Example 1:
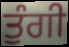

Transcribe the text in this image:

ਤੁੰਗੀ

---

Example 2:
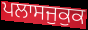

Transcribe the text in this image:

ਪਲਾਸਜੁਕੁਕ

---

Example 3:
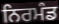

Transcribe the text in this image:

ਨਿਰਮੰਡ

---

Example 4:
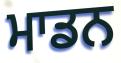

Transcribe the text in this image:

ਮਾਡਨ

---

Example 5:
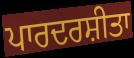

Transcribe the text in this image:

ਪਾਰਦਰਸ਼ੀਤਾ